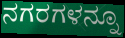
ನಗರಗಳನ್ನೂ